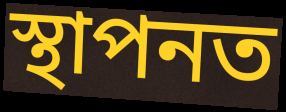
স্থাপনত